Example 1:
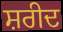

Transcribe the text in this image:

ਸ਼ਰੀਦ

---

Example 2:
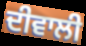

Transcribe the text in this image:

ਦੀਵਾਲੀ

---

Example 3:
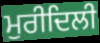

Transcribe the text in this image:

ਮੁਰੀਦਿਲੀ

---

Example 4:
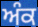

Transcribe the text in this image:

ਅੰਕ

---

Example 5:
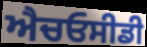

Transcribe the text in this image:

ਐਚਓਸੀਡੀ